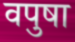
वपुषा